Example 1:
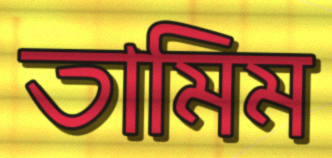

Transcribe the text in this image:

তামিম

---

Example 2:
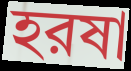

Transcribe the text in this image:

হরষা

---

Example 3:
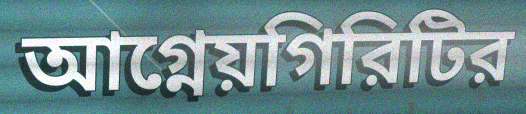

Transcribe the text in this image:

আগ্নেয়গিরিটির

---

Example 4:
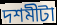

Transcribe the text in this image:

দশমীটা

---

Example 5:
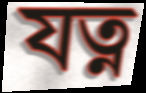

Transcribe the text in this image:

যত্ন